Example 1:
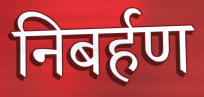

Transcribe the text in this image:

निबर्हण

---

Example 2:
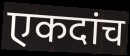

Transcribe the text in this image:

एकदांच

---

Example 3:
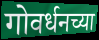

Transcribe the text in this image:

गोवर्धनच्या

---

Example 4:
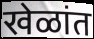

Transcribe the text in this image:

खेळांत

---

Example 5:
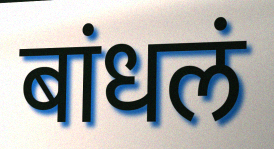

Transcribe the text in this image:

बांधलं